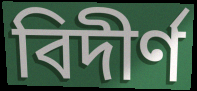
বিদীর্ণ